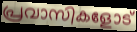
പ്രവാസികളോട്